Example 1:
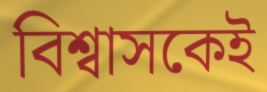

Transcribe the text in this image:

বিশ্বাসকেই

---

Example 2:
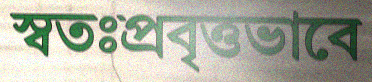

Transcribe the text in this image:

স্বতঃপ্রবৃত্তভাবে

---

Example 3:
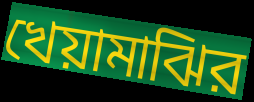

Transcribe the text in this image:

খেয়ামাঝির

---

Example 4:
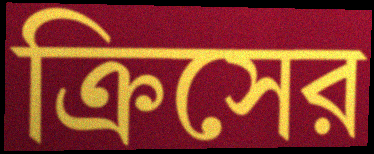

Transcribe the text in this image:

ক্রিসের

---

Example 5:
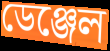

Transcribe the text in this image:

ডেঞ্জেল